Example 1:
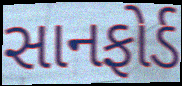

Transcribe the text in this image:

સાનફોર્ડ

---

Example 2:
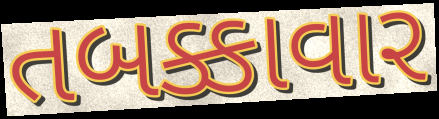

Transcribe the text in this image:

તબક્કાવાર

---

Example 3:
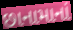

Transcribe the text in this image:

છાનામાનાં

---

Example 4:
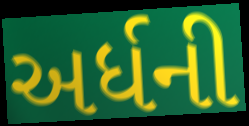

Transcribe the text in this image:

અર્ધની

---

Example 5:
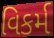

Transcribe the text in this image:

વિકર્મ